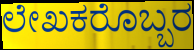
ಲೇಖಕರೊಬ್ಬರ